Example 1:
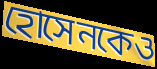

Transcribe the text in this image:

হোসেনকেও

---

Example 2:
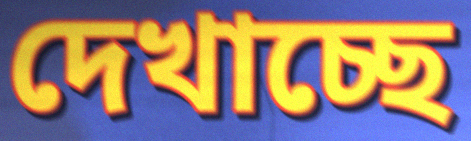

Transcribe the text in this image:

দেখাচ্ছে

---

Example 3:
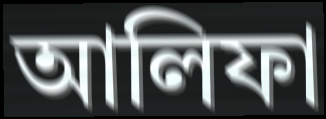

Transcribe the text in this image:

আলিফা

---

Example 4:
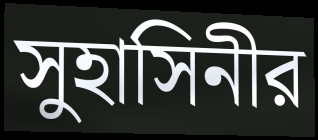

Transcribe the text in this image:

সুহাসিনীর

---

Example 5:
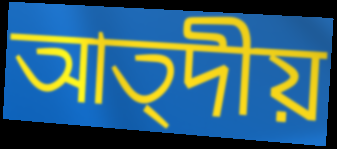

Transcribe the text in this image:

আত্দীয়